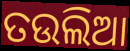
ତଉଲିଆ